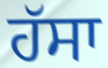
ਹੱਸਾ